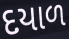
દયાળ